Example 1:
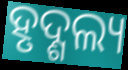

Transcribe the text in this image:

ହୃଦ୍ଶଲ୍ୟ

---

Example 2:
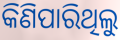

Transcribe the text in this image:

କିଣିପାରିଥିଲୁ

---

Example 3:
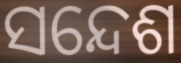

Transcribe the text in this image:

ସନ୍ଦେଶ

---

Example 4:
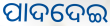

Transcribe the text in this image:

ପାଦଦେଇ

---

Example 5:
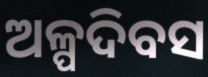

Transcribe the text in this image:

ଅଳ୍ପଦିବସ